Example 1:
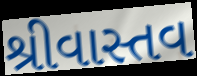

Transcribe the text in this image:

શ્રીવાસ્તવ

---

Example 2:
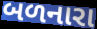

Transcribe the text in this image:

બળનારા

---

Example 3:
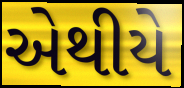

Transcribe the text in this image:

એથીયે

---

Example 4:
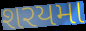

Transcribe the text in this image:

શરયમા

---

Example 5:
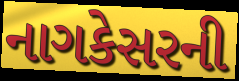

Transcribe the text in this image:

નાગકેસરની